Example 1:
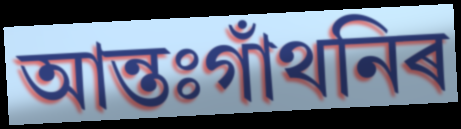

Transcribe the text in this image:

আন্তঃগাঁথনিৰ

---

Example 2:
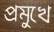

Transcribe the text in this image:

প্ৰমুখে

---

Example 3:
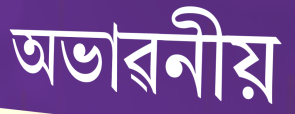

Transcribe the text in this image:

অভাৱনীয়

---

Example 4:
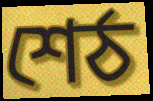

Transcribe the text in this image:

শেঠ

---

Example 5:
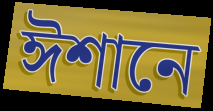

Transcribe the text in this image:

ঈশানে